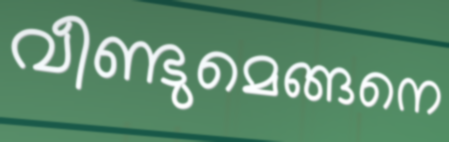
വീണ്ടുമെങ്ങനെ